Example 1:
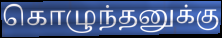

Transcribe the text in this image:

கொழுந்தனுக்கு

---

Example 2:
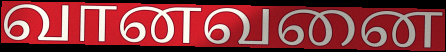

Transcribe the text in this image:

வானவனை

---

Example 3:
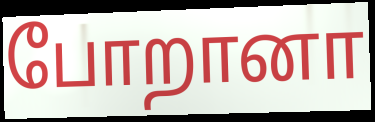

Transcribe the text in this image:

போறானா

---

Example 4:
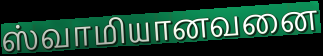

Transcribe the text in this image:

ஸ்வாமியானவனை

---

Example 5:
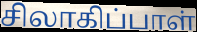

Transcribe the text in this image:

சிலாகிப்பாள்